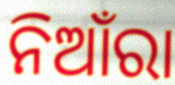
ନିଆଁରା